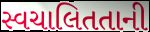
સ્વચાલિતતાની